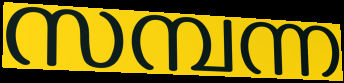
സമ്പന്ന